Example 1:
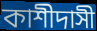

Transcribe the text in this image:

কাশীদাসী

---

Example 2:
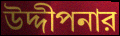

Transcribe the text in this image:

উদ্দীপনার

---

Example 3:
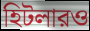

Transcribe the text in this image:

হিটলারও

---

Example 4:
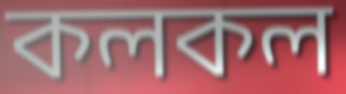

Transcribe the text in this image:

কলকল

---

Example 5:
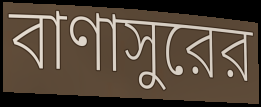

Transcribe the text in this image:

বাণাসুরের